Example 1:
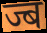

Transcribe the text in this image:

ज्ब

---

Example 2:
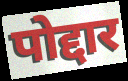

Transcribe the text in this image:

पोद्दार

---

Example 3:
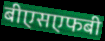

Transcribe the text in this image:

बीएसएफबी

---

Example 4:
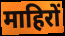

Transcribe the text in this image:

माहिरों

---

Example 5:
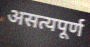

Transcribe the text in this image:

असत्यपूर्ण